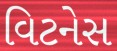
વિટનેસ